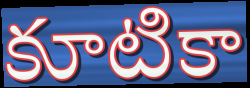
కూటికా